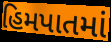
હિમપાતમાં